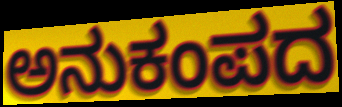
ಅನುಕಂಪದ